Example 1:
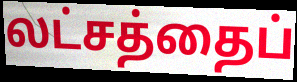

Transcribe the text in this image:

லட்சத்தைப்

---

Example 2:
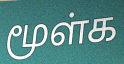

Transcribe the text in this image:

மூள்க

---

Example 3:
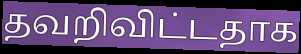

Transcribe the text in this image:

தவறிவிட்டதாக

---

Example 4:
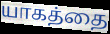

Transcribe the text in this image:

யாகத்தை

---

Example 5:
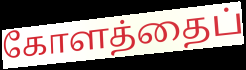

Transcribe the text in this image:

கோளத்தைப்